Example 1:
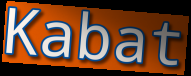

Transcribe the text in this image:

Kabat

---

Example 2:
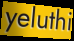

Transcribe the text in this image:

yeluthi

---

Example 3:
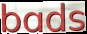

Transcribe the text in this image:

bads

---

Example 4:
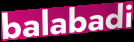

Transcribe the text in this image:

balabadi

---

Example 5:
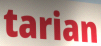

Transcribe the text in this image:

tarian